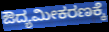
ಔದ್ಯಮೀಕರಣಕ್ಕೆ